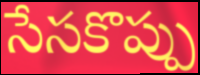
సేసకొప్పు